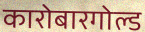
कारोबारगोल्ड